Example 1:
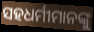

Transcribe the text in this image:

ସହଧର୍ମୀମାନଙ୍କୁ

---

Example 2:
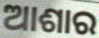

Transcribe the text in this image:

ଆଶାର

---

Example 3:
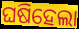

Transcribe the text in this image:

ଘଷିହେଲା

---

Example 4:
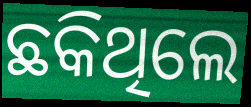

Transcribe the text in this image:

ଛକିଥିଲେ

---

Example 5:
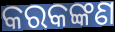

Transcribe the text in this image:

କରକଙ୍କଣ